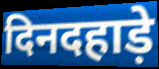
दिनदहाड़े